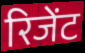
रिजेंट